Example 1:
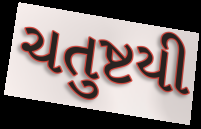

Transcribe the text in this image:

ચતુષ્ટયી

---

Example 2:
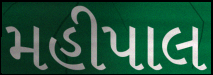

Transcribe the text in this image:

મહીપાલ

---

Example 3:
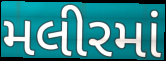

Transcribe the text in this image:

મલીરમાં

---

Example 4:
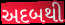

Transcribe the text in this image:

અદબથી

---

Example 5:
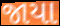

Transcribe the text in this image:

જાયા